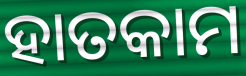
ହାତକାମ